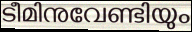
ടീമിനുവേണ്ടിയും